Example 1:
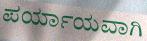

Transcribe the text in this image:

ಪರ್ಯಾಯವಾಗಿ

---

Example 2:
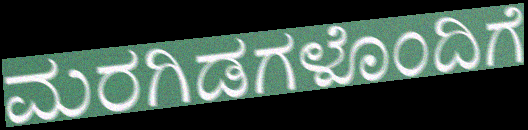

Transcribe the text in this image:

ಮರಗಿಡಗಳೊಂದಿಗೆ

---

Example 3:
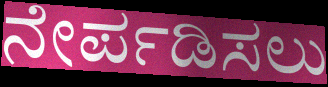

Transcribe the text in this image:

ನೇರ್ಪಡಿಸಲು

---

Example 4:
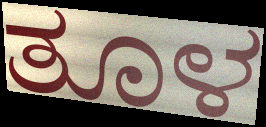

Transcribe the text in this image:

ತೂಳ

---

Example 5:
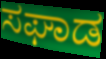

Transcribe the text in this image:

ಸಘಾಡ